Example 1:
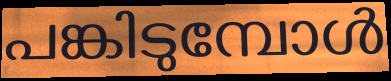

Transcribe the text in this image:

പങ്കിടുമ്പോൾ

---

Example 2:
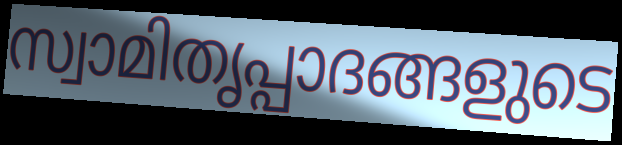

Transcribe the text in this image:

സ്വാമിതൃപ്പാദങ്ങളുടെ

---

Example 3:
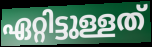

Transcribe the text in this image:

ഏറ്റിട്ടുള്ളത്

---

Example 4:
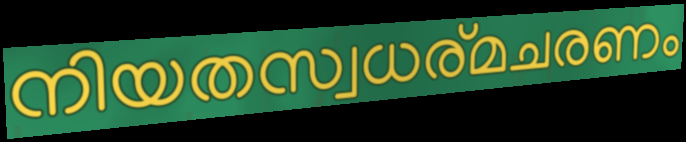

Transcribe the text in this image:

നിയതസ്വധര്മചരണം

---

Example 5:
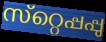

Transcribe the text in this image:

സ്‌റ്റെപ്പപ്പു